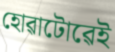
হোৱাটোৱেই